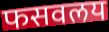
फसवलय